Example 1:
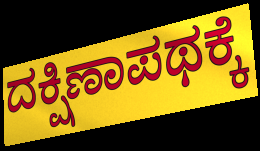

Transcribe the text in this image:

ದಕ್ಷಿಣಾಪಥಕ್ಕೆ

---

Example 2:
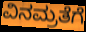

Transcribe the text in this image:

ವಿನಮ್ರತೆಗೆ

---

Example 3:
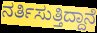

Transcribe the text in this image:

ನರ್ತಿಸುತ್ತಿದ್ದಾನೆ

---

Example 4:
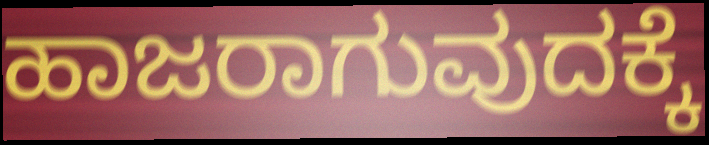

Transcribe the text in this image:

ಹಾಜರಾಗುವುದಕ್ಕೆ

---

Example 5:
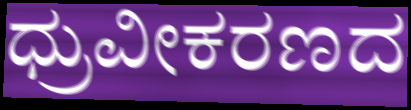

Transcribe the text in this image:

ಧ್ರುವೀಕರಣದ